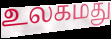
உலகமது